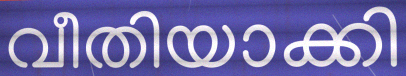
വീതിയാക്കി